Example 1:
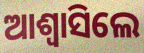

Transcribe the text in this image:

ଆଶ୍ୱାସିଲେ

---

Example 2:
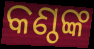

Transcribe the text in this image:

କଣ୍ଠଙ୍କ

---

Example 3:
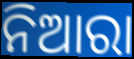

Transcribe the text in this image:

ନିଆରା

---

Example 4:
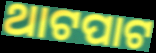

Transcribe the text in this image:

ଥାଟପାଟ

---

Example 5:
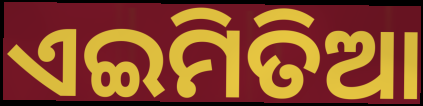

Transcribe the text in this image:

ଏଇମିତିଆ